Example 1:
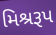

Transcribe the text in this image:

મિશ્રરૂપ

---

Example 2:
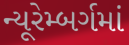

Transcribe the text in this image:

ન્યૂરેમ્બર્ગમાં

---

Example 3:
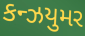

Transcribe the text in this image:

કન્ઝયુમર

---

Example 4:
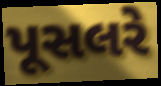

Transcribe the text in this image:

પૂસલરે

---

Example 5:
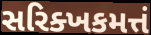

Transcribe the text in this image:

સરિક્ખકમત્તં